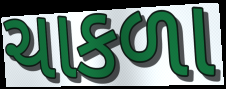
ચાકળા